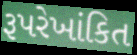
રૂપરેખાંકિત